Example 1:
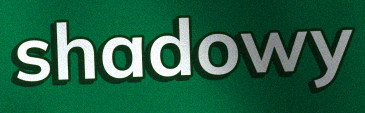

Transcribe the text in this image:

shadowy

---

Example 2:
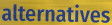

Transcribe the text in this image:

alternatives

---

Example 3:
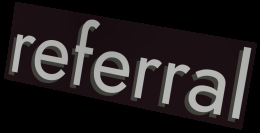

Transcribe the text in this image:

referral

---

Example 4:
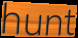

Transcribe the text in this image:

hunt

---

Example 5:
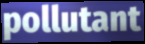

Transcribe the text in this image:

pollutant